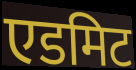
एडमिट